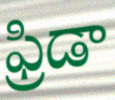
ఫ్రిడా